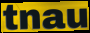
tnau